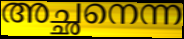
അച്ഛനെന്ന